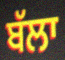
ਬੱਲਾ